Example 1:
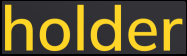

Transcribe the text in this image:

holder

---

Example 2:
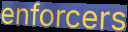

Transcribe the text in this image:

enforcers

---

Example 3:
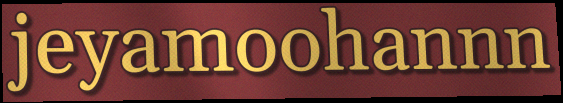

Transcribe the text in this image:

jeyamoohannn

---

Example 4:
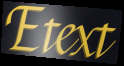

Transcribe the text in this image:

Etext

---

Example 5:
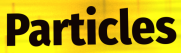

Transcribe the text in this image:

Particles